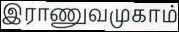
இராணுவமுகாம்